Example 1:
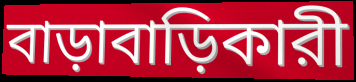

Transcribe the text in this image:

বাড়াবাড়িকারী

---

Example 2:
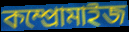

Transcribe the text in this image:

কম্প্রোমাইজ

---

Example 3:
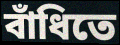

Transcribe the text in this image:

বাঁধিতে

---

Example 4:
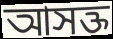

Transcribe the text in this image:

আসক্ত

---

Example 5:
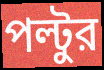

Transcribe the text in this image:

পল্টুর